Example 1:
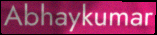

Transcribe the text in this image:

Abhaykumar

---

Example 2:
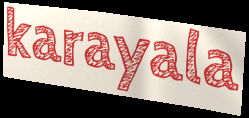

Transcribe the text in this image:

karayala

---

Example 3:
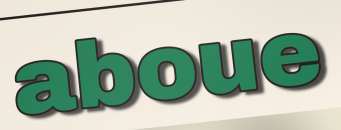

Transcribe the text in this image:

aboue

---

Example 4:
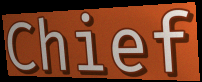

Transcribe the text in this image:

Chief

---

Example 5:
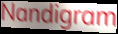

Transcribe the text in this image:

Nandigram